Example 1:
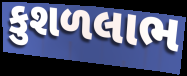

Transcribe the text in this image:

કુશળલાભ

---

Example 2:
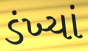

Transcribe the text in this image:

ડંખ્યાં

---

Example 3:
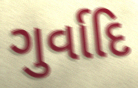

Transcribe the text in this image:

ગુર્વાદિ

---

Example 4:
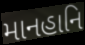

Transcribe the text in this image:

માનહાનિ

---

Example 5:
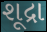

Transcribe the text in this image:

શૂદ્રા